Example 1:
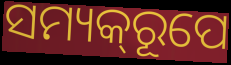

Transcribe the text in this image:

ସମ୍ୟକ୍‌ରୂପେ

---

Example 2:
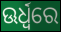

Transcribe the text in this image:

ଊର୍ଧ୍ୱରେ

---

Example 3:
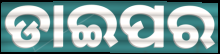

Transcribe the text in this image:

ଡାଇପର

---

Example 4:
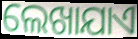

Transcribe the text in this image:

ଲେଖାଯାଏ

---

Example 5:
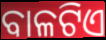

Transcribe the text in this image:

ବାଳଟିଏ